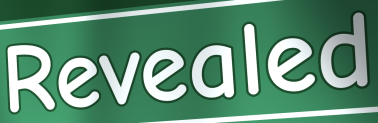
Revealed